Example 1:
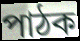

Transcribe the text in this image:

পাঠক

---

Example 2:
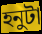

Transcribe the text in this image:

হনুটা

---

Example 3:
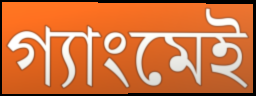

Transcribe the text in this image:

গ্যাংমেই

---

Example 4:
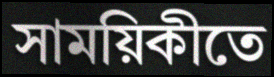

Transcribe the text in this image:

সাময়িকীতে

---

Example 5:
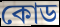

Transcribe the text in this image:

কোড